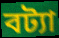
বট্যা